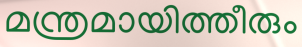
മന്ത്രമായിത്തീരും